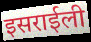
इसराईली